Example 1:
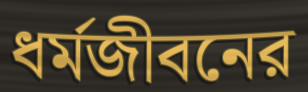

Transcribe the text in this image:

ধর্মজীবনের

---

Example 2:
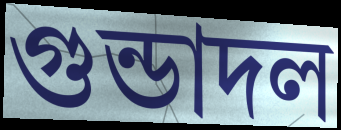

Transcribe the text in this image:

গুন্ডাদল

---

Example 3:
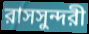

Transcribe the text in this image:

রাসসুন্দরী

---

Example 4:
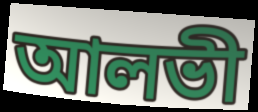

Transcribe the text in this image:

আলভী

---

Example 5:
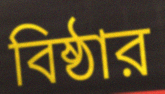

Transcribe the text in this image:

বিষ্ঠার